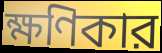
ক্ষণিকার